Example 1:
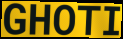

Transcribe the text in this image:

GHOTI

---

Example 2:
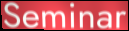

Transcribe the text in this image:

Seminar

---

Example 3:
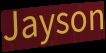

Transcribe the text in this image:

Jayson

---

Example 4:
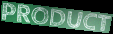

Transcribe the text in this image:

PRODUCT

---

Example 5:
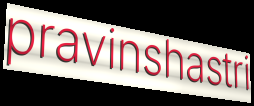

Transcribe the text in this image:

pravinshastri